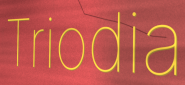
Triodia